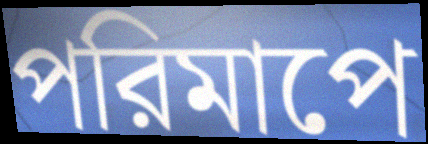
পরিমাপে